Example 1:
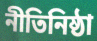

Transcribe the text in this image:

নীতিনিষ্ঠা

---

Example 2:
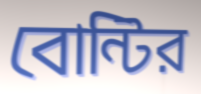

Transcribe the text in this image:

বোন্টির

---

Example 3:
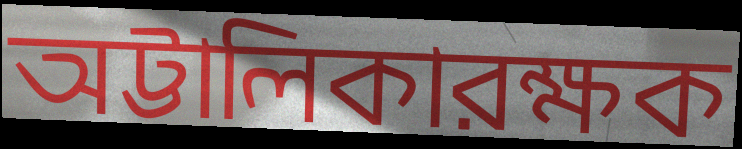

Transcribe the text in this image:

অট্টালিকারক্ষক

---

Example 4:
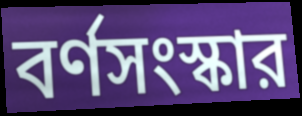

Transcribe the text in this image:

বর্ণসংস্কার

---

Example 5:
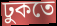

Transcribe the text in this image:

ঢুকতে